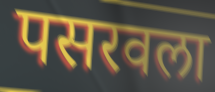
पसरवला